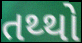
તથ્થો